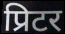
प्रिटर